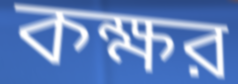
কক্ষর